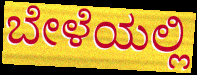
ಬೇಳೆಯಲ್ಲಿ